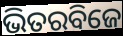
ଭିତରବିଜେ